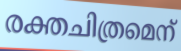
രക്തചിത്രമെന്